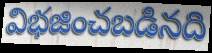
విభజించబడినది